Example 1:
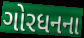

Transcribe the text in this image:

ગોરધનના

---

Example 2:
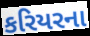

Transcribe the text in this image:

કરિયરના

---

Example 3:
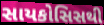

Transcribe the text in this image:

સાયકોસિસથી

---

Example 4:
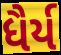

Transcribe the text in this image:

ધૈર્ય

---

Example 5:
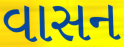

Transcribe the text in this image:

વાસન